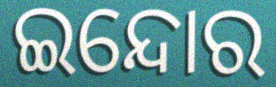
ଇନ୍ଦୋର